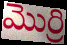
మొర్రి